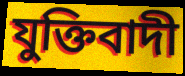
যুক্তিবাদী